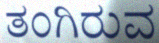
ತಂಗಿರುವ